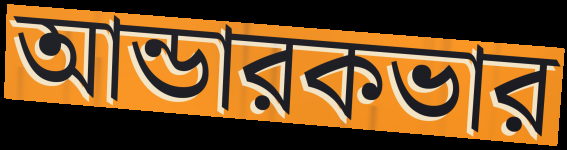
আন্ডারকভার